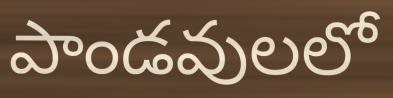
పాండవులలో